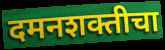
दमनशक्तीचा